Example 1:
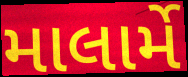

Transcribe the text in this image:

માલાર્મે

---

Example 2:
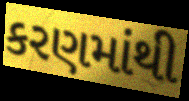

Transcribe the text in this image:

કરણમાંથી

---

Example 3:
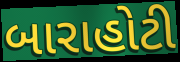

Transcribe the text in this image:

બારાહોટી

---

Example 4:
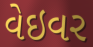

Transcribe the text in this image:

વેઇવર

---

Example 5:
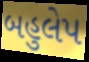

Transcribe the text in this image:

બહુલેપ